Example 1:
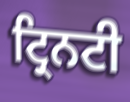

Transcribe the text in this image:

ਟ੍ਰਿਨਟੀ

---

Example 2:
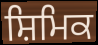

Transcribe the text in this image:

ਸ਼ਿਮਿਕ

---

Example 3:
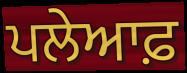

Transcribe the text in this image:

ਪਲੇਆਫ਼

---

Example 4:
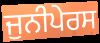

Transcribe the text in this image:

ਜੁਨੀਪੇਰਸ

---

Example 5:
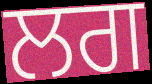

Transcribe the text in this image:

ਲਗ